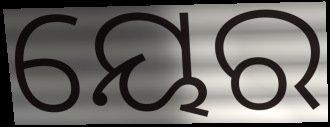
ୟେର